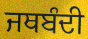
ਜਥਬੰਦੀ